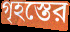
গৃহস্তের